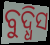
ବୁଦ୍ଧିସ